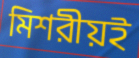
মিশরীয়ই